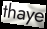
thaye